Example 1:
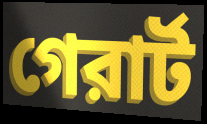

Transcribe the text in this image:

গেরার্ট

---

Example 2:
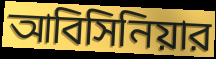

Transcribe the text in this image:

আবিসিনিয়ার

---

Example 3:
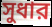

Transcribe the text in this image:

সুধার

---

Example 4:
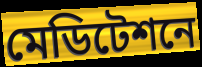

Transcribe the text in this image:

মেডিটেশনে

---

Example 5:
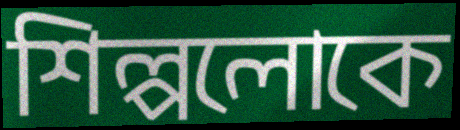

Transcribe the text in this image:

শিল্পলোকে